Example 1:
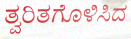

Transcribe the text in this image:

ತ್ವರಿತಗೊಳಿಸಿದ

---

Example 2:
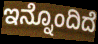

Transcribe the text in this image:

ಇನ್ನೊಂದಿದೆ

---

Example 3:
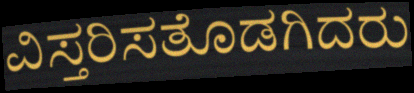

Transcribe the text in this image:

ವಿಸ್ತರಿಸತೊಡಗಿದರು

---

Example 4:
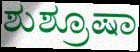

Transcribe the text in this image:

ಶುಶ್ರೂಷಾ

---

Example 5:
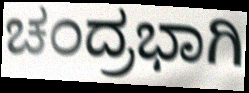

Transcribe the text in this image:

ಚಂದ್ರಭಾಗಿ